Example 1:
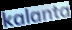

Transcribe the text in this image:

kalanta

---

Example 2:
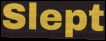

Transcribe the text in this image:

Slept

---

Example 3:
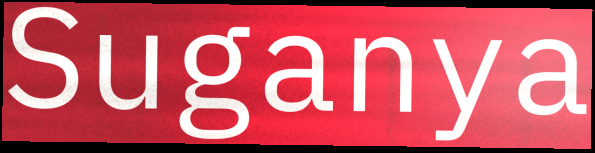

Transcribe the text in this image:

Suganya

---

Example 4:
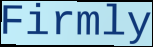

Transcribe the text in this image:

Firmly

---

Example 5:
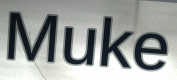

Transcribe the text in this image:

Muke